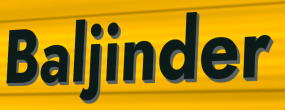
Baljinder